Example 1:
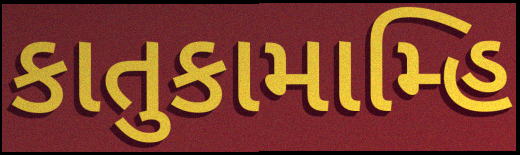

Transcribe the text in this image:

કાતુકામામ્હિ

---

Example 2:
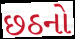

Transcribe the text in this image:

છઠનો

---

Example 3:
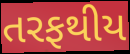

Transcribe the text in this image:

તરફથીય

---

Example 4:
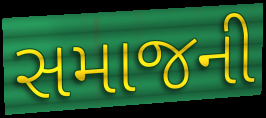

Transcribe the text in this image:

સમાજની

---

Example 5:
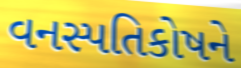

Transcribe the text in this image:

વનસ્પતિકોષને